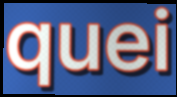
quei